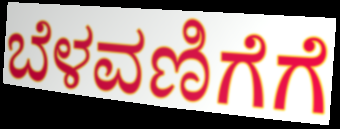
ಬೆಳವಣಿಗೆಗೆ